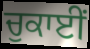
ਚੁਕਾਈਂ